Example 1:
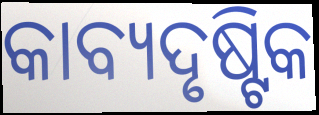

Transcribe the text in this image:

କାବ୍ୟଦୃଷ୍ଟିକ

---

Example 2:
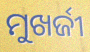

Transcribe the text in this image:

ମୁଖର୍ଜୀ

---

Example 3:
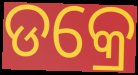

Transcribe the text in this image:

ଡକ୍ରେ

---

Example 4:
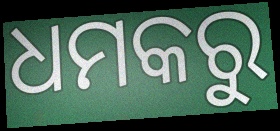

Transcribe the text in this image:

ଧମକରୁ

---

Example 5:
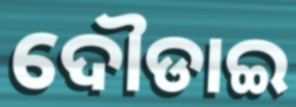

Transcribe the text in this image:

ଦୌଡାଇ